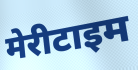
मेरीटाइम